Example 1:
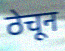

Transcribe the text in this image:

ठेचून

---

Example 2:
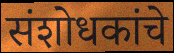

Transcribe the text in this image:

संशोधकांचे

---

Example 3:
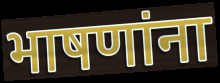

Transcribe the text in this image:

भाषणांना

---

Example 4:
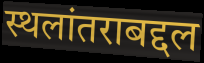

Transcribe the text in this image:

स्थलांतराबद्दल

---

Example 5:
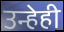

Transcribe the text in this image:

उन्हेही